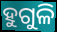
ହୁଗୁଳି